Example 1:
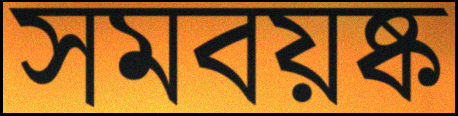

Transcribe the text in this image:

সমবয়ষ্ক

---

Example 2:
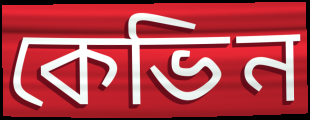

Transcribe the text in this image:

কেভিন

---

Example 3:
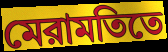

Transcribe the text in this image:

মেরামতিতে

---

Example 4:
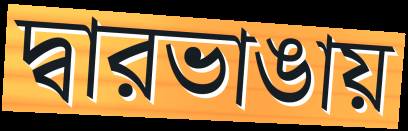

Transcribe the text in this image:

দ্বারভাঙায়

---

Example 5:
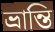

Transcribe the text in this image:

ভ্রান্তি